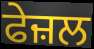
ਫੇਜ਼ਲ